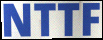
NTTF